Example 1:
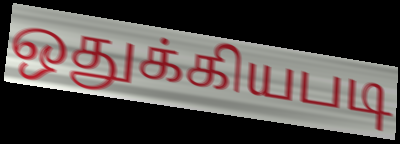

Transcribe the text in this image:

ஒதுக்கியபடி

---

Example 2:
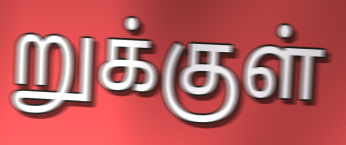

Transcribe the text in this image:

றுக்குள்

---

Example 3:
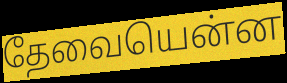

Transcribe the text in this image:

தேவையென்ன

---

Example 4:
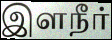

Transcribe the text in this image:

இளநீர்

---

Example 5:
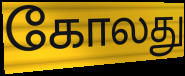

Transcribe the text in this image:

கோலது